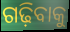
ଗଢ଼ିବାକୁ